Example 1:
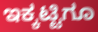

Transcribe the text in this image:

ಇಕ್ಕಟ್ಟಿಗೂ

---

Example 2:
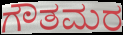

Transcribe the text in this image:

ಗೌತಮರ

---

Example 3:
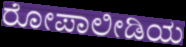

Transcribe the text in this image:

ರೋಪಾಲೀಡಿಯ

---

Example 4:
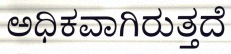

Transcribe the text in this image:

ಅಧಿಕವಾಗಿರುತ್ತದೆ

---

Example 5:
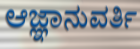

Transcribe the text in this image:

ಆಜ್ಞಾನುವರ್ತಿ